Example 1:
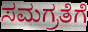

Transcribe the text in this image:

ಸಮಗ್ರತೆಗೆ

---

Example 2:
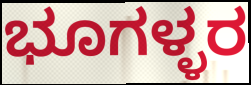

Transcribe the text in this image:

ಭೂಗಳ್ಳರ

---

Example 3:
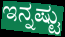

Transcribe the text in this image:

ಇನ್ನಷ್ಟು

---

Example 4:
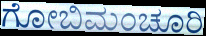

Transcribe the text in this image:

ಗೋಬಿಮಂಚೂರಿ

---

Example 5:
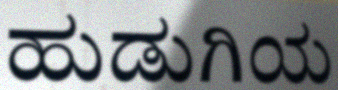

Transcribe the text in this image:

ಹುಡುಗಿಯ